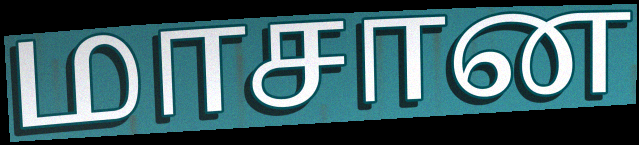
மாசான